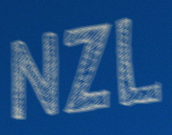
NZL